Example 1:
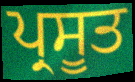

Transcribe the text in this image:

ਪ੍ਰਸੂਤ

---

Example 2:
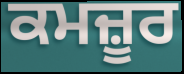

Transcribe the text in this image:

ਕਮਜ਼ੂਰ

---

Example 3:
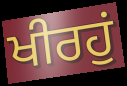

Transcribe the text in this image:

ਖੀਰਹੁਂ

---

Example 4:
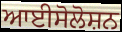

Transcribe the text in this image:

ਆਈਸੋਲੋਸ਼ਨ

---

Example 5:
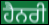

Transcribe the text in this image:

ਹੈਨਰੀ